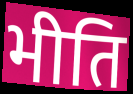
भीति